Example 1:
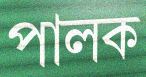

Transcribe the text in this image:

পালক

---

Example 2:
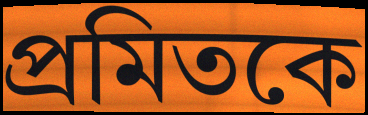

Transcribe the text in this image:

প্রমিতকে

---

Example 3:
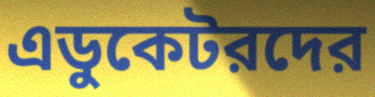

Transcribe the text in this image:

এডুকেটরদের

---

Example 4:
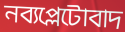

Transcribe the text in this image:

নব্যপ্লেটোবাদ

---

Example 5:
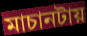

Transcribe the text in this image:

মাচানটায়